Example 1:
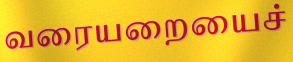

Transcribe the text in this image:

வரையறையைச்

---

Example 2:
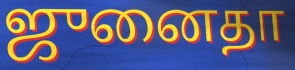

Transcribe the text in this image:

ஜுனைதா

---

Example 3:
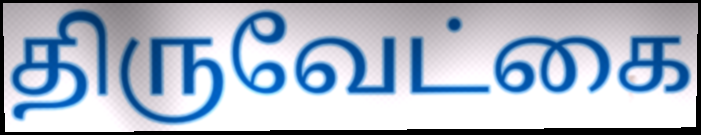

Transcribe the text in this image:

திருவேட்கை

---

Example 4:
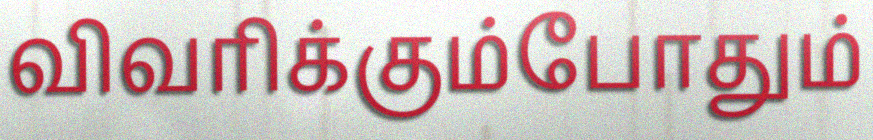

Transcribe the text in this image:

விவரிக்கும்போதும்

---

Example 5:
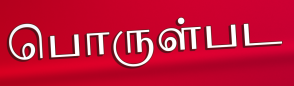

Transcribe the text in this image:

பொருள்பட